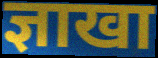
ज्ञाखा